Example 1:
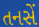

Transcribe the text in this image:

તનસેં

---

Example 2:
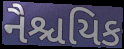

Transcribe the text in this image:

નૈશ્ચયિક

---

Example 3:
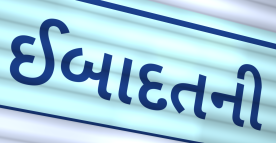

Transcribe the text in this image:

ઈબાદતની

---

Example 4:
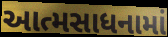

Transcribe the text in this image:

આત્મસાધનામાં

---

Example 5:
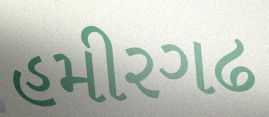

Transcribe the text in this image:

હમીરગઢ